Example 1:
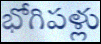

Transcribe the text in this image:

భోగిపళ్లు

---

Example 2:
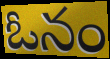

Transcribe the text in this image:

ఓనం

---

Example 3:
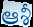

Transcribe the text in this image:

ఆశీ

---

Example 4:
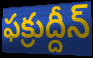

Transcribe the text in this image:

ఫక్రుద్దీన్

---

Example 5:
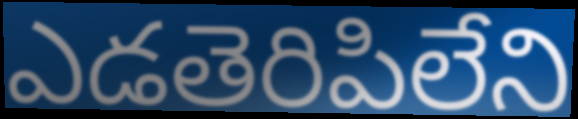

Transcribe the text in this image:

ఎడతెరిపిలేని